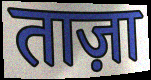
ताज़ा